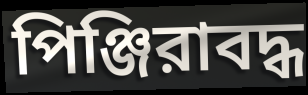
পিঞ্জিরাবদ্ধ